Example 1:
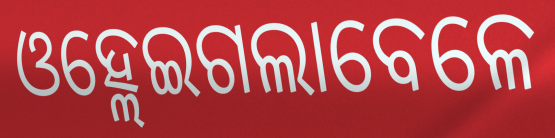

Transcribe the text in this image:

ଓହ୍ଲେଇଗଲାବେଳେ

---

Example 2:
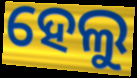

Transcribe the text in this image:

ହେଲୁ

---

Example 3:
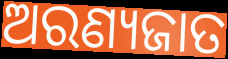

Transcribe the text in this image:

ଅରଣ୍ୟଜାତ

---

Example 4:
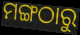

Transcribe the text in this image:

ମଙ୍ଗଠାରୁ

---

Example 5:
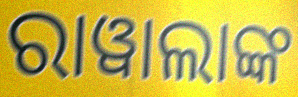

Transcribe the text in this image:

ରାୱାଲାଙ୍କ